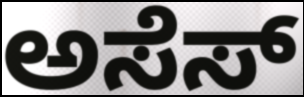
ಅಸೆಸ್